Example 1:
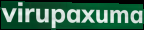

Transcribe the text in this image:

virupaxuma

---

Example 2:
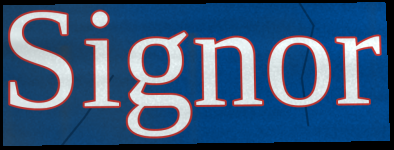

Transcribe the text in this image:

Signor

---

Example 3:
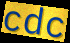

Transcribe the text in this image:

cdc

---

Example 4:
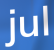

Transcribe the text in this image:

jul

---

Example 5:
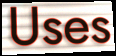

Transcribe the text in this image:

Uses